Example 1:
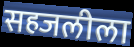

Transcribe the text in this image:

सहजलीला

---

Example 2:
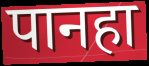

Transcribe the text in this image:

पानहा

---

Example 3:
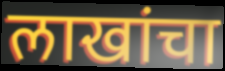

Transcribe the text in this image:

लाखांचा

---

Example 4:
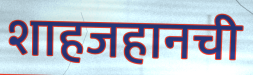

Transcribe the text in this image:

शाहजहानची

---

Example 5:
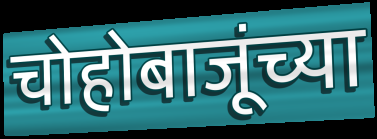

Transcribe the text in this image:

चोहोबाजूंच्या